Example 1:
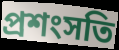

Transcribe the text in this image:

প্রশংসতি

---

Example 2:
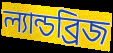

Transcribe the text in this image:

ল্যান্ডব্রিজ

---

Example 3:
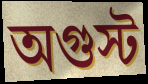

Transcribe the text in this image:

অগুস্ট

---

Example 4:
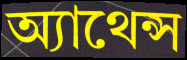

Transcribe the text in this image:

অ্যাথেন্স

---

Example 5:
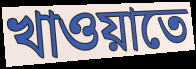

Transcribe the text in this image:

খাওয়াতে